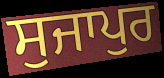
ਸੁਜਾਪੁਰ